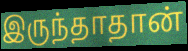
இருந்தாதான்